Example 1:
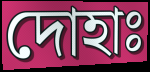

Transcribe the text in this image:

দোহাঃ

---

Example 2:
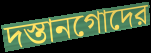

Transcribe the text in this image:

দস্তানগোদের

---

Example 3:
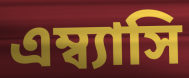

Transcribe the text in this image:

এম্ব্যাসি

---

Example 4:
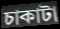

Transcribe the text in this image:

চাকাটা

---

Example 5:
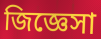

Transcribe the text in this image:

জিজ্ঞেসা